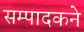
सम्पादकने